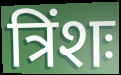
त्रिंशः